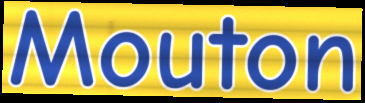
Mouton